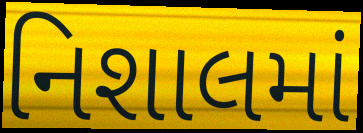
નિશાલમાં